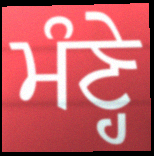
ਮੰਣ੍ਹੇ